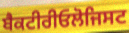
ਬੈਕਟੀਰੀਓਲੋਜਿਸਟ